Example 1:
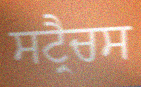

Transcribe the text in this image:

ਸਟ੍ਰੈਚਸ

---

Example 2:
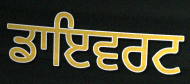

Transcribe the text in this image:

ਡਾਇਵਰਟ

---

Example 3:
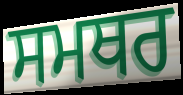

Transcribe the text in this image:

ਸਮਥਰ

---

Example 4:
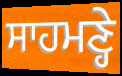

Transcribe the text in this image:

ਸਾਹਮਣ੍ਹੇ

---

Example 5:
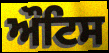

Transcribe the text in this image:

ਔਟਿਸ